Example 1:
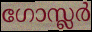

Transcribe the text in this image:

ഗോസ്ലർ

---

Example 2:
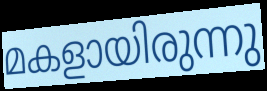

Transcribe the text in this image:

മകളായിരുന്നു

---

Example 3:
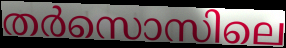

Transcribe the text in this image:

തർസൊസിലെ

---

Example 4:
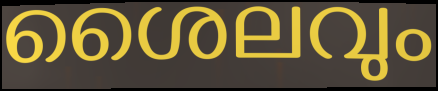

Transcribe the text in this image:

ശൈലവും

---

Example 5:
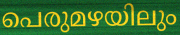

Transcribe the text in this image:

പെരുമഴയിലും